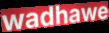
wadhawe